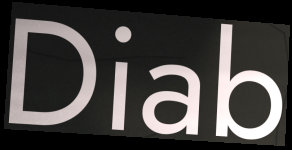
Diab